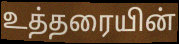
உத்தரையின்